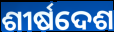
ଶୀର୍ଷଦେଶ